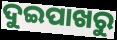
ଦୁଇପାଖରୁ